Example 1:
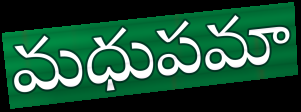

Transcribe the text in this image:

మధుపమా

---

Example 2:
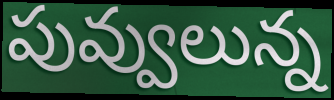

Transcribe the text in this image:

పువ్వులున్న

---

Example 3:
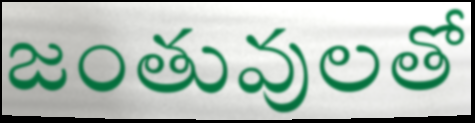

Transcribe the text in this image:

జంతువులతో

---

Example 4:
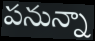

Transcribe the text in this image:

పనున్నా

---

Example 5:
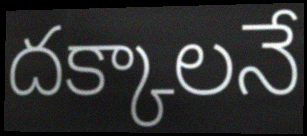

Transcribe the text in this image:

దక్కాలనే